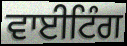
ਵਾਈਟਿੰਗ